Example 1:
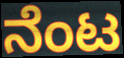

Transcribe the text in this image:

ನೆಂಟ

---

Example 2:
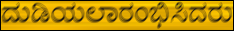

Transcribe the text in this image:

ದುಡಿಯಲಾರಂಭಿಸಿದರು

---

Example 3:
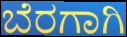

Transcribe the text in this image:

ಬೆರಗಾಗಿ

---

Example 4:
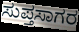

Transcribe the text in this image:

ಸುಪ್ತಸಾಗರ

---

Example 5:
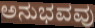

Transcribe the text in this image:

ಅನುಭವವು